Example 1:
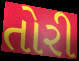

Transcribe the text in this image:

તોરી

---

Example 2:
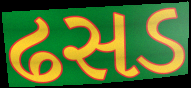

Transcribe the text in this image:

ઢસડ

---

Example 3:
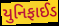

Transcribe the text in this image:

યુનિફાઈડ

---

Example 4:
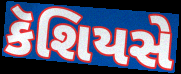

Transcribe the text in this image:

કૅશિયસે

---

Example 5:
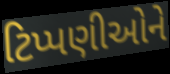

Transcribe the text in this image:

ટિપ્પણીઓને